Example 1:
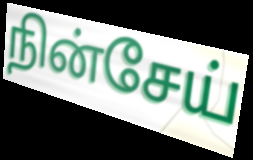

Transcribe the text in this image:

நின்சேய்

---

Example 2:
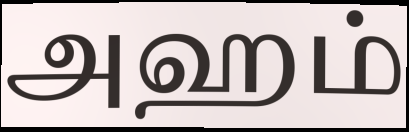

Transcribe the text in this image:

அஹம்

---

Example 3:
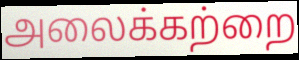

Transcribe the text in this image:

அலைக்கற்றை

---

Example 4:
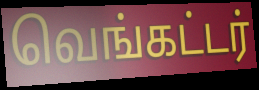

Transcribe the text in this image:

வெங்கட்டர்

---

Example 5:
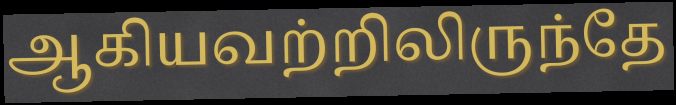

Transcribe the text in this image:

ஆகியவற்றிலிருந்தே